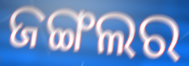
ଜଙ୍ଗଲର